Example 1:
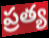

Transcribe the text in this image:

ప్రత్య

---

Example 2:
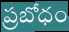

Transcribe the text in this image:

ప్రబోధం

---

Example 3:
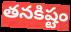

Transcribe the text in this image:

తనకిష్టం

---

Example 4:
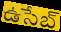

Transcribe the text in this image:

ఉసేబ్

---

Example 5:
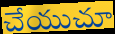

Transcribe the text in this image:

చేయుచూ